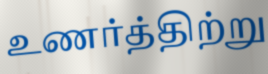
உணர்த்திற்று